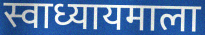
स्वाध्यायमाला